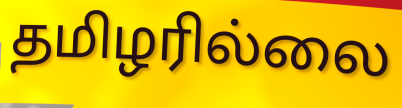
தமிழரில்லை